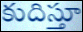
కుదిస్తూ